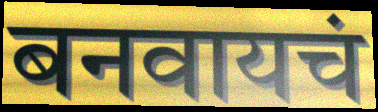
बनवायचं